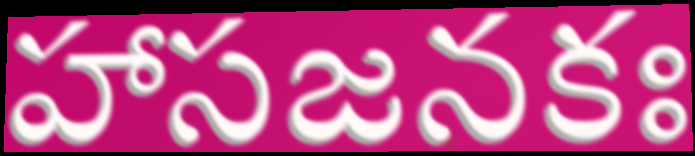
హాసజనకః